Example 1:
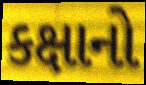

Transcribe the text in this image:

કક્ષાનો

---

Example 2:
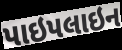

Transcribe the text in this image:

પાઇપલાઇન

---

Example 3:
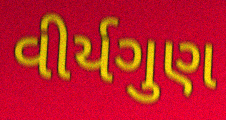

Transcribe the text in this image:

વીર્યગુણ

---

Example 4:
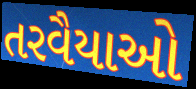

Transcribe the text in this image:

તરવૈયાઓ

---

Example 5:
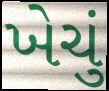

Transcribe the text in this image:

ખેચું